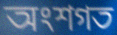
অংশগত